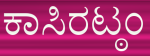
ಕಾಸಿರಟ್ಠಂ